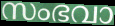
സംഭവാ